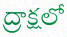
ద్రాక్షలో